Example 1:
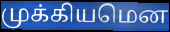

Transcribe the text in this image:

முக்கியமென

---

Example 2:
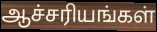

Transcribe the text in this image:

ஆச்சரியங்கள்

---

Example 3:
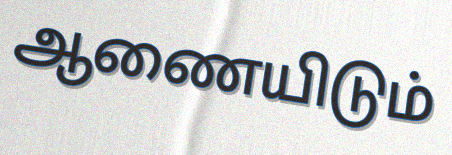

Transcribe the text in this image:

ஆணையிடும்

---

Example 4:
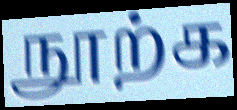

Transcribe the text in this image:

நூற்க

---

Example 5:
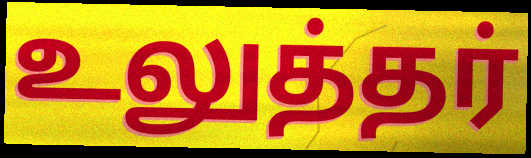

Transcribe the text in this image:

உலுத்தர்